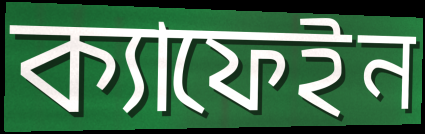
ক্যাফেইন